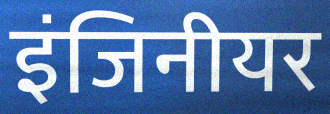
इंजिनीयर